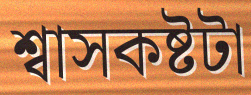
শ্বাসকষ্টটা